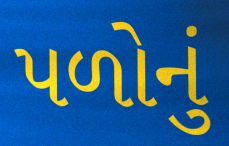
પળોનું